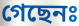
গেছেনঃ